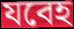
যবেহ